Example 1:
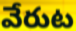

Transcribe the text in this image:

వేరుట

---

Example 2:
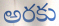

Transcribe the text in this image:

అరకు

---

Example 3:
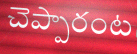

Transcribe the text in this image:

చెప్పారంట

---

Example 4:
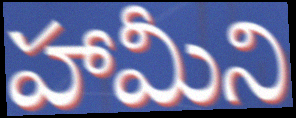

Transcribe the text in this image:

హామీని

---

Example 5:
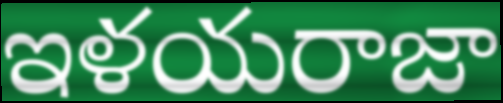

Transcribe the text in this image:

ఇళయరాజా